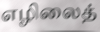
எழிலைத்